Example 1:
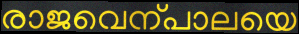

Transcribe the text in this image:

രാജവെന്പാലയെ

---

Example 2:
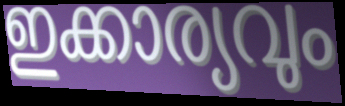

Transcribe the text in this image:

ഇക്കാര്യവും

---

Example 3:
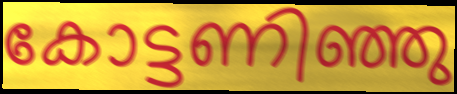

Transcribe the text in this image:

കോട്ടണിഞ്ഞു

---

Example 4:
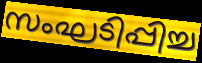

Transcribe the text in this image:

സംഘടിപ്പിച്ച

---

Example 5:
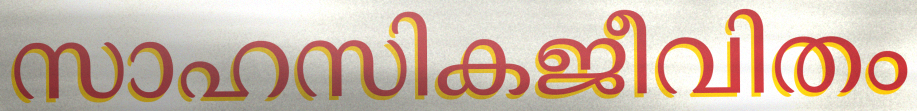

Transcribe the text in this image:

സാഹസികജീവിതം